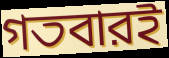
গতবারই